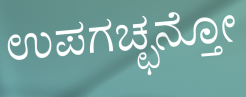
ಉಪಗಚ್ಛನ್ತೋ